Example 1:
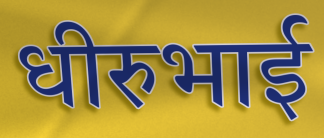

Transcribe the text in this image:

धीरुभाई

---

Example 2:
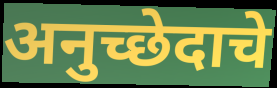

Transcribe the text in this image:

अनुच्छेदाचे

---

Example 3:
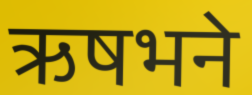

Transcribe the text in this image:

ऋषभने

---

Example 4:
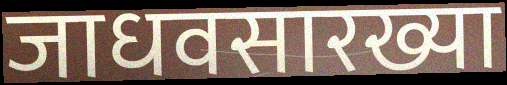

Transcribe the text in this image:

जाधवसारख्या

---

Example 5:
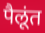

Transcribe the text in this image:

पैलूंत